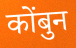
कोंबुन